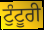
ਟੁੰਟੂਰੀ